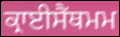
ਕ੍ਰਾਈਸੈਂਥਮਮ